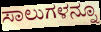
ಸಾಲುಗಳನ್ನೂ